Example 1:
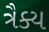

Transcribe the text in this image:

ત્રૈક્ય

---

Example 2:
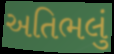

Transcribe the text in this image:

અતિભલું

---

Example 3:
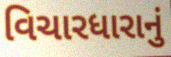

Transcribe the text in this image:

વિચારધારાનું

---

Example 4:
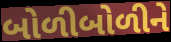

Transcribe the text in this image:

બોળીબોળીને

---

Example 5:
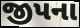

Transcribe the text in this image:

જીપના